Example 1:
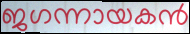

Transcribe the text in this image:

ജഗന്നായകൻ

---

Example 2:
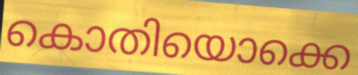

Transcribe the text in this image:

കൊതിയൊക്കെ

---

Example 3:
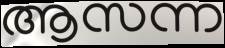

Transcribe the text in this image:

ആസന്ന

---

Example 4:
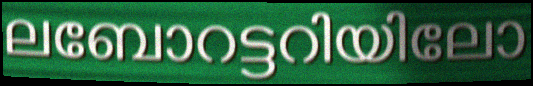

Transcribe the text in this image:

ലബോറട്ടറിയിലോ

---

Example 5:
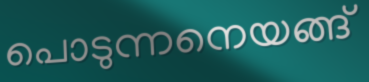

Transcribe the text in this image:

പൊടുന്നനെയങ്ങ്